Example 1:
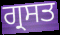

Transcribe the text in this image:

ਗ੍ਰਸਤ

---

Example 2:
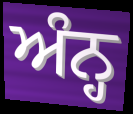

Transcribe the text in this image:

ਅੰਨ੍ਹ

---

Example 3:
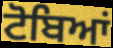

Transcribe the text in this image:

ਟੋਬਿਆਂ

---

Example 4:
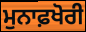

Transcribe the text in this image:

ਮੁਨਾਫ਼ਖੋਰੀ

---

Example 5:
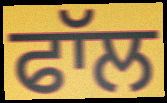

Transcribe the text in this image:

ਫਾੱਲ